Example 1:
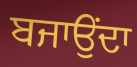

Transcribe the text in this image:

ਬਜਾਉਂਦਾ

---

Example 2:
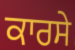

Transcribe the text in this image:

ਕਾਰਸੇ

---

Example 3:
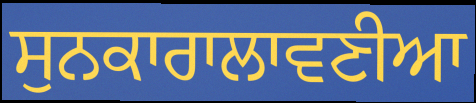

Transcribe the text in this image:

ਸੁਨਕਾਰਾਲਾਵਣੀਆ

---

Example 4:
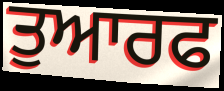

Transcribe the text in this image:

ਤੁਆਰਫ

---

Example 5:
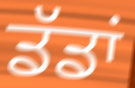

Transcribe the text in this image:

ਡੱਡਾਂ